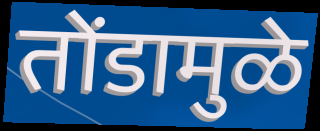
तोंडामुळे